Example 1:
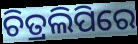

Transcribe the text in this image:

ଚିତ୍ରଲିପିରେ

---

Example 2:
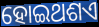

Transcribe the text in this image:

ହୋଇଥଶଏ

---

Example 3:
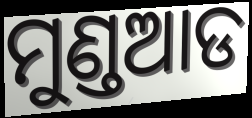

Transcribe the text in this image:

ମୁଣ୍ଡଆଡ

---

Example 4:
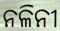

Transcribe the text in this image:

ନଳିନୀ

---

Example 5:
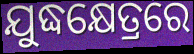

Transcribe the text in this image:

ଯୁଦ୍ଧକ୍ଷେତ୍ରରେ